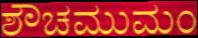
ಶೌಚಮುಮಂ